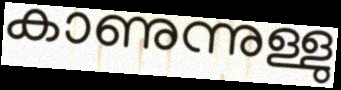
കാണുന്നുള്ളു